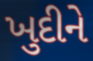
ખુદીને